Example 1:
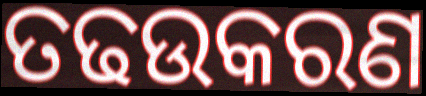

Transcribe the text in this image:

ତଢଉକରଣ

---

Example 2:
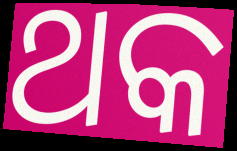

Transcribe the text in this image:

ଥକ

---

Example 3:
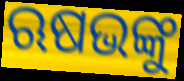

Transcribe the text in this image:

ଋଷଭଙ୍କୁ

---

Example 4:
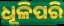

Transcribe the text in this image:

ଧୂଳିପରି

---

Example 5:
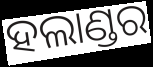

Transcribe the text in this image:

ହଲାଣ୍ଡର